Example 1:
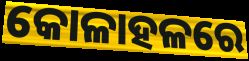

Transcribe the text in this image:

କୋଳାହଳରେ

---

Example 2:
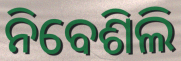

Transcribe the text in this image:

ନିବେଶିଲି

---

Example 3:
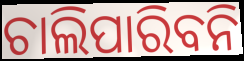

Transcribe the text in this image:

ଚାଲିପାରିବନି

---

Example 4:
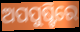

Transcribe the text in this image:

ଅପପୁଷ୍ଟିରେ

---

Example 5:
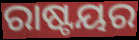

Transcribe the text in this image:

ରାଷ୍ଟୟର